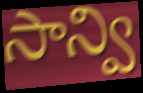
సాన్వి